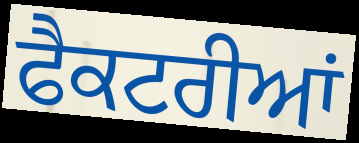
ਫੈਕਟਰੀਆਂ